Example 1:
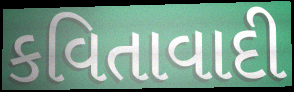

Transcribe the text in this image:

કવિતાવાદી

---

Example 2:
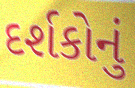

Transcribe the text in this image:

દર્શકોનું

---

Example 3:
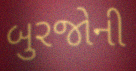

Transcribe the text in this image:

બુરજોની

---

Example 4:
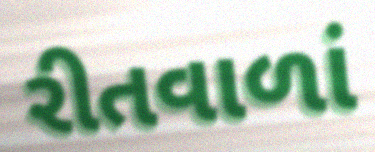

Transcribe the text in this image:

રીતવાળાં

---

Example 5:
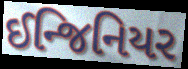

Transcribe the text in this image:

ઈન્જિનિયર